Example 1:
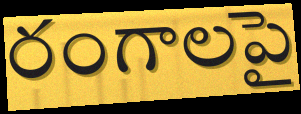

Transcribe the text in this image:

రంగాలపై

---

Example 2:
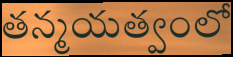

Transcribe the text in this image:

తన్మయత్వంలో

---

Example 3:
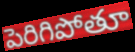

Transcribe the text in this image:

పెరిగిపోతూ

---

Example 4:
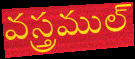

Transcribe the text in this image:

వస్త్రముల్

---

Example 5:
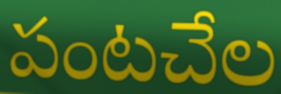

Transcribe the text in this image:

పంటచేల